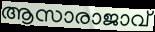
ആസാരാജാവ്